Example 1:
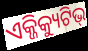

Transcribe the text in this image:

ଏକ୍ଜିକ୍ୟୁଟିଭ୍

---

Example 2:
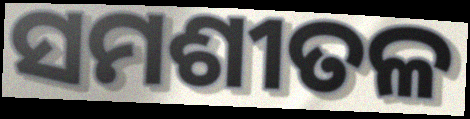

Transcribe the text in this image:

ସମଶୀତଳ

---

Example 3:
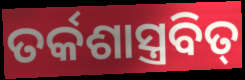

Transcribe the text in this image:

ତର୍କଶାସ୍ତ୍ରବିତ୍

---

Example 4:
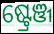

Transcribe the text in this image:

ଷ୍ଟ୍ରେଞ୍ଜ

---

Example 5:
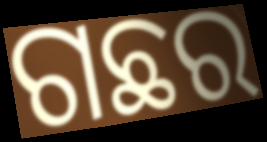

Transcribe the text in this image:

ଗଛର